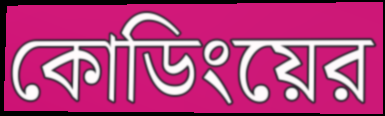
কোডিংয়ের